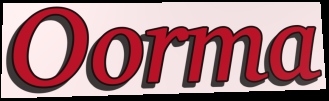
Oorma